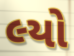
લ્યો